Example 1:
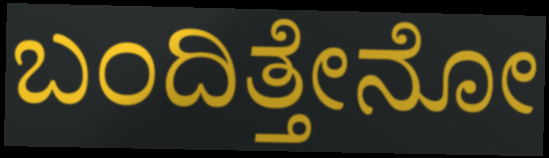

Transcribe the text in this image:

ಬಂದಿತ್ತೇನೋ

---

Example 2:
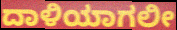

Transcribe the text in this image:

ದಾಳಿಯಾಗಲೀ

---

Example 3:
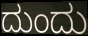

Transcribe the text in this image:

ದುಂದು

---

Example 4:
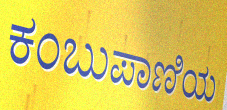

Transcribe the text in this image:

ಕಂಬುಪಾಣಿಯ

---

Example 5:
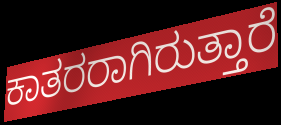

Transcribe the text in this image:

ಕಾತರರಾಗಿರುತ್ತಾರೆ